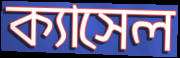
ক্যাসেল